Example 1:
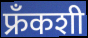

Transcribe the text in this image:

फ्रँकशी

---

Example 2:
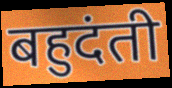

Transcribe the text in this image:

बहुदंती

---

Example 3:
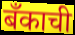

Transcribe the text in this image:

बँकाची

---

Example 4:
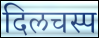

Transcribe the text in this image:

दिलचस्प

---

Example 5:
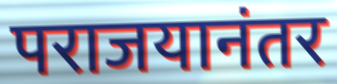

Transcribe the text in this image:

पराजयानंतर